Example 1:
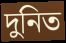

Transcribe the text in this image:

দুনিত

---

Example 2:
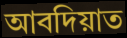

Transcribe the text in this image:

আবদিয়াত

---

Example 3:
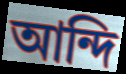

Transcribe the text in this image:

আন্দি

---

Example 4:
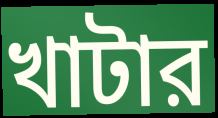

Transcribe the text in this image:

খাটার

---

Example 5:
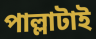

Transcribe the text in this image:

পাল্লাটাই